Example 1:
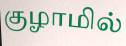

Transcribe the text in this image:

குழாமில்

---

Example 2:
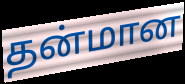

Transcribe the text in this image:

தன்மான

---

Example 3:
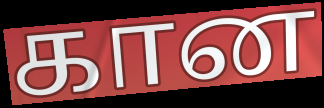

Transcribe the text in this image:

கான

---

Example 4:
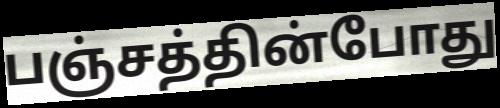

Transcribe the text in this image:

பஞ்சத்தின்போது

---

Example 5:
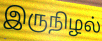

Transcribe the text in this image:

இருநிழல்